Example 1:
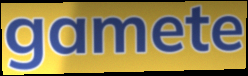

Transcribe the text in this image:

gamete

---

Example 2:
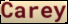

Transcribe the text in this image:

Carey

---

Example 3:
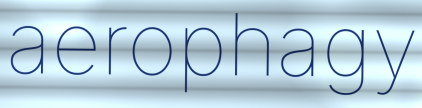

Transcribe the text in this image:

aerophagy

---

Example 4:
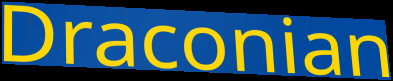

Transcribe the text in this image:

Draconian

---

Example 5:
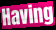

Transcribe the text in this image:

Having